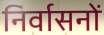
निर्वासनों